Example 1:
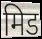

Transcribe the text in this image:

मिड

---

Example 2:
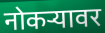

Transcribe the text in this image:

नोकऱ्यावर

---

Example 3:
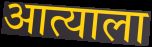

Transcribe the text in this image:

आत्याला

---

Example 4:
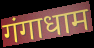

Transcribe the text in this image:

गंगाधाम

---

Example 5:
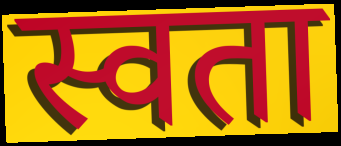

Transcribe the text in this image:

स्वता